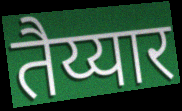
तैय्यार